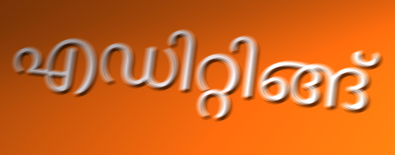
എഡിറ്റിങ്ങ്